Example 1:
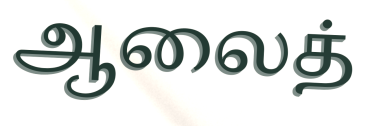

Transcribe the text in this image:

ஆலைத்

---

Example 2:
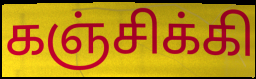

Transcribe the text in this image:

கஞ்சிக்கி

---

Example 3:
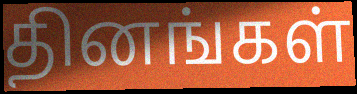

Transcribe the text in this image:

தினங்கள்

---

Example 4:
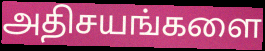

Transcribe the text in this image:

அதிசயங்களை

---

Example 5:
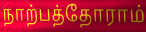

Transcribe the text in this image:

நாற்பத்தோராம்